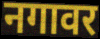
नगावर